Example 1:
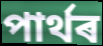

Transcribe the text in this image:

পাৰ্থৰ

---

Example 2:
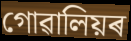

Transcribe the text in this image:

গোৱালিয়ৰ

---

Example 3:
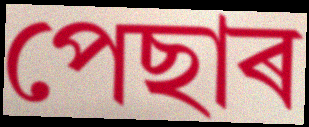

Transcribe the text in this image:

পেছাৰ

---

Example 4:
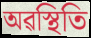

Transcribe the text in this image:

অৱস্থিতি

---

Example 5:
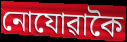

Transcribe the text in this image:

নোযোৱাকৈ